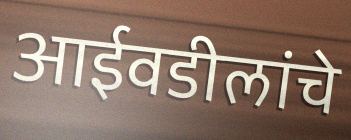
आईवडीलांचे